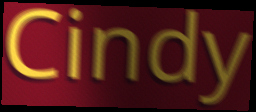
Cindy